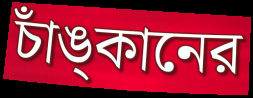
চাঁঙ্‌কানের